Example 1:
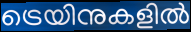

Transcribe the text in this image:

ട്രെയിനുകളിൽ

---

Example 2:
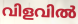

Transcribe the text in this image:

വിളവിൽ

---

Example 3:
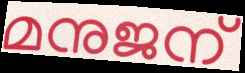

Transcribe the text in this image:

മനുജന്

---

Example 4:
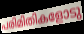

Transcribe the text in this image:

പരിമിതികളോടു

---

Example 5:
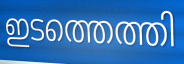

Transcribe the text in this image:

ഇടത്തെത്തി